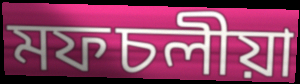
মফচলীয়া